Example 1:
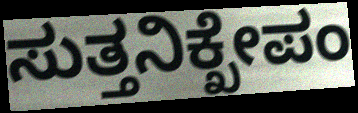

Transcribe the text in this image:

ಸುತ್ತನಿಕ್ಖೇಪಂ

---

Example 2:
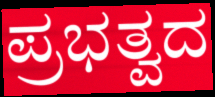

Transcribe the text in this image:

ಪ್ರಭತ್ವದ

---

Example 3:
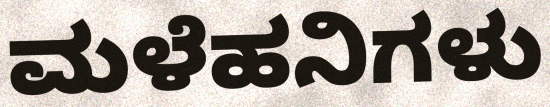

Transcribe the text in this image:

ಮಳೆಹನಿಗಳು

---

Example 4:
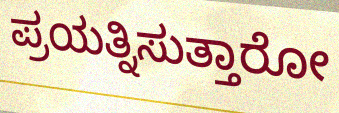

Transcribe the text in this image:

ಪ್ರಯತ್ನಿಸುತ್ತಾರೋ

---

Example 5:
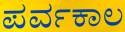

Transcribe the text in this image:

ಪರ್ವಕಾಲ